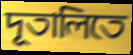
দূতালিতে